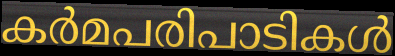
കർമപരിപാടികൾ